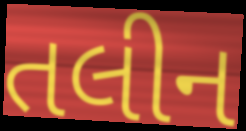
તલીન